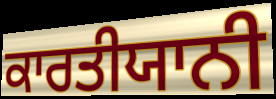
ਕਾਰਤੀਯਾਨੀ